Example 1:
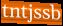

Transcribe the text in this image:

tntjssb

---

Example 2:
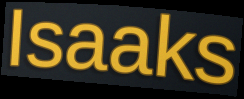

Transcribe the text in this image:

Isaaks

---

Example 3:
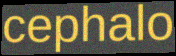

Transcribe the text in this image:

cephalo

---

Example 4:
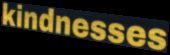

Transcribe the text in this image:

kindnesses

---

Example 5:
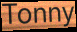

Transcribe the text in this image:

Tonny